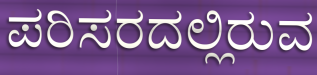
ಪರಿಸರದಲ್ಲಿರುವ